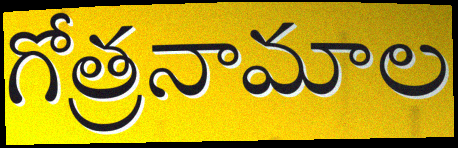
గోత్రనామాల